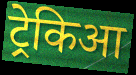
ट्रेकिआ